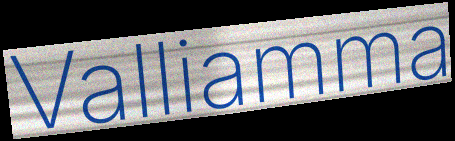
Valliamma